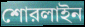
শোরলাইন